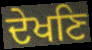
ਦੇਖਣਿ